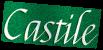
Castile